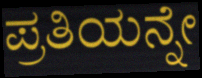
ಪ್ರತಿಯನ್ನೇ